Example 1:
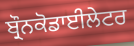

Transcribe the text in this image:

ਬ੍ਰੌਨਕੋਡਾਈਲੇਟਰ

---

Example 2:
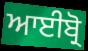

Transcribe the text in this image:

ਆਈਬ੍ਰੋ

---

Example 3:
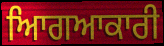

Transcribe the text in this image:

ਆਿਗਆਕਾਰੀ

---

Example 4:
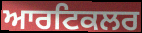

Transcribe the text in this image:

ਆਰਟਿਕਲਰ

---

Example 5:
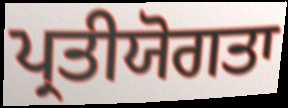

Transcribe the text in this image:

ਪ੍ਰਤੀਯੋਗਤਾ